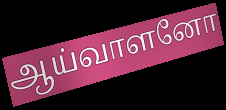
ஆய்வாளனோ